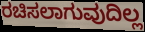
ರಚಿಸಲಾಗುವುದಿಲ್ಲ